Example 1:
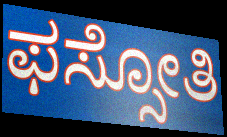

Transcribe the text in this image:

ಫಸ್ಸೋತಿ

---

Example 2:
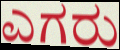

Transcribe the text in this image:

ಎಗರು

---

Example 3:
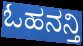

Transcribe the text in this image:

ಓಹನನ್ತಿ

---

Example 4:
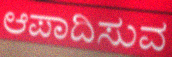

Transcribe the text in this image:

ಆಪಾದಿಸುವ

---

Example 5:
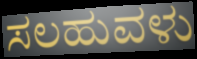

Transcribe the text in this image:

ಸಲಹುವಳು